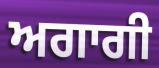
ਅਗਾਗੀ